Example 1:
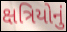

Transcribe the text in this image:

ક્ષત્રિયોનું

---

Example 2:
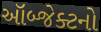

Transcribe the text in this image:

ઑબ્જેક્ટનો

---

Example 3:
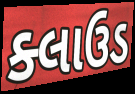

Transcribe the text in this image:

ક્લાઉડ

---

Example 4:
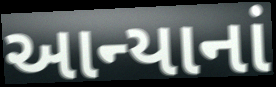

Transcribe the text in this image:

આન્યાનાં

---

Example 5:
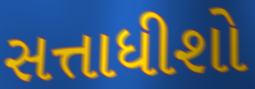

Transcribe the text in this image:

સત્તાધીશો